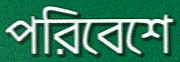
পরিবেশে